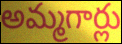
అమ్మగార్లు